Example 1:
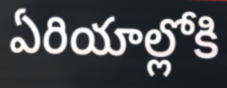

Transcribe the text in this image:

ఏరియాల్లోకి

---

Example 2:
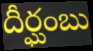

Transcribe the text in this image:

దీర్ఘంబు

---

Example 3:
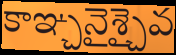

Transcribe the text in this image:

కాఞ్చనైశ్చైవ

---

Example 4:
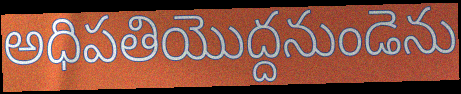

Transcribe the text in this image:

అధిపతియొద్దనుండెను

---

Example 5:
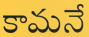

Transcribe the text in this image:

కామనే